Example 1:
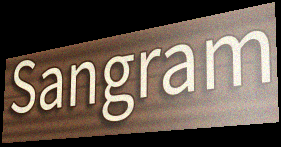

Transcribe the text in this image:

Sangram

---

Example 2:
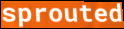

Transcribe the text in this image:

sprouted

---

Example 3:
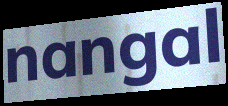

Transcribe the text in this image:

nangal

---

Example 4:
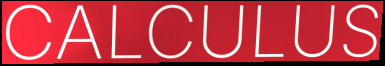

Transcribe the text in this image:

CALCULUS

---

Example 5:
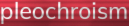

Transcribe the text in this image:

pleochroism